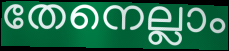
തേനെല്ലാം